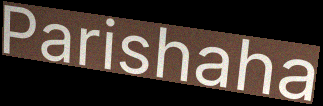
Parishaha